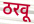
ठरवू